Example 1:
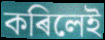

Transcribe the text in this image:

কৰিলেই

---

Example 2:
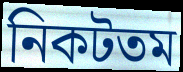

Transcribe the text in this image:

নিকটতম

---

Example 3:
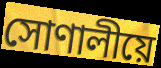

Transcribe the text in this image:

সোণালীয়ে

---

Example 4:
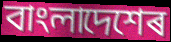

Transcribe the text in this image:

বাংলাদেশেৰ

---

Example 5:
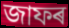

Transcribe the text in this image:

জাফৰ